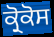
ਕ੍ਰੋਕੋਸ